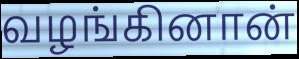
வழங்கினான்